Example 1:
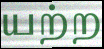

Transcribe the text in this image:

யற்ற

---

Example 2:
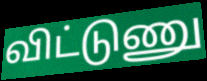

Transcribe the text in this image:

விட்டுணு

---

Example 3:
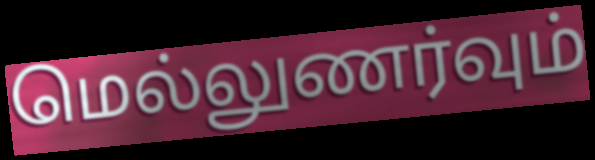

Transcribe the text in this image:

மெல்லுணர்வும்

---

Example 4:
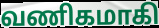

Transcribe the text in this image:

வணிகமாகி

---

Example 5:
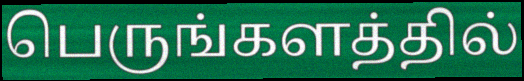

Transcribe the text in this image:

பெருங்களத்தில்